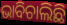
ଭାବିଚାଲିଛି